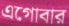
এগোবার